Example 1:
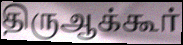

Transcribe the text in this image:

திருஆக்கூர்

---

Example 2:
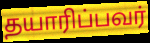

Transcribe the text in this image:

தயாரிப்பவர்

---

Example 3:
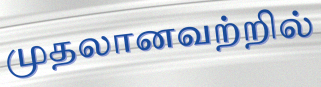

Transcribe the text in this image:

முதலானவற்றில்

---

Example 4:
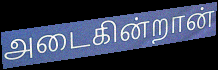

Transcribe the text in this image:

அடைகின்றான்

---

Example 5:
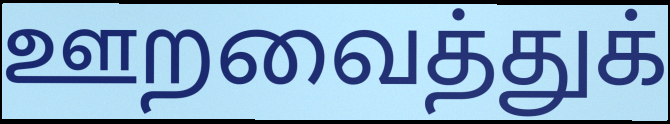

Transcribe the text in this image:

ஊறவைத்துக்